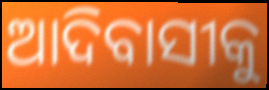
ଆଦିବାସୀକୁ